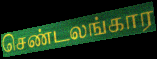
செண்டலங்கார